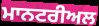
ਮਾਨਟਰੀਅਲ